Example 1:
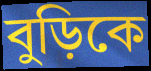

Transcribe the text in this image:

বুড়িকে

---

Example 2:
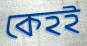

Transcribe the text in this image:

কেহই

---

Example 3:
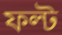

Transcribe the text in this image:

ফল্ট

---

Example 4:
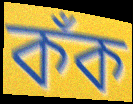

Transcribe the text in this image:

কঁক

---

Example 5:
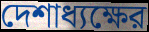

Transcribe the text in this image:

দেশাধ্যক্ষের